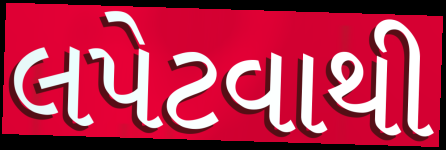
લપેટવાથી